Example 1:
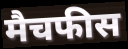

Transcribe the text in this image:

मैचफीस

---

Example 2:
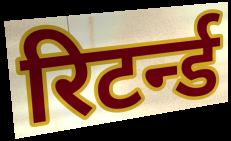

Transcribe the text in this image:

रिटर्न्ड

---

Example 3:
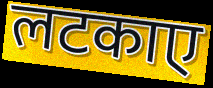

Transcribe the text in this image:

लटकाए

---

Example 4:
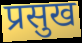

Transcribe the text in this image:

प्रसुख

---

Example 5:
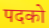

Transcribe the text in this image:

पदको